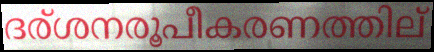
ദര്ശനരൂപീകരണത്തില്